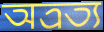
অত্রত্য